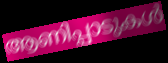
ആണിപ്പാടുകൾ